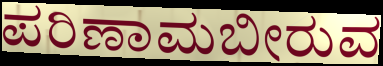
ಪರಿಣಾಮಬೀರುವ